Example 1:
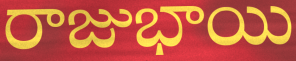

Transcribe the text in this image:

రాజుభాయి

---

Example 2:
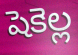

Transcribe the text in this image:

షెకెల్ల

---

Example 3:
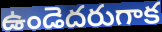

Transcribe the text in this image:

ఉండెదరుగాక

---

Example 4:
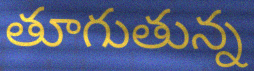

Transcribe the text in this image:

తూగుతున్న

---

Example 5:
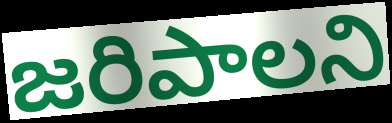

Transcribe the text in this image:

జరిపాలని